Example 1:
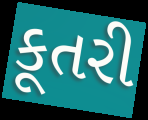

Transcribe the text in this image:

કૂતરી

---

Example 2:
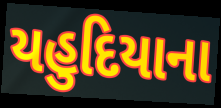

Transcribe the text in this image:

યહુદિયાના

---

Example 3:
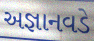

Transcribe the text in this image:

અજ્ઞાનવડે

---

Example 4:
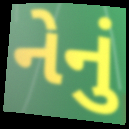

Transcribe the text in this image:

નેનું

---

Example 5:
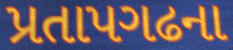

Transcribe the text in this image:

પ્રતાપગઢના